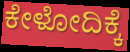
ಕೇಳೋದಿಕ್ಕೆ